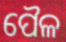
ପୈଳ